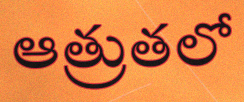
ఆత్రుతలో